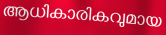
ആധികാരികവുമായ